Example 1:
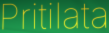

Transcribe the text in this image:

Pritilata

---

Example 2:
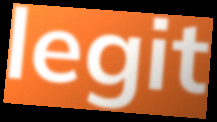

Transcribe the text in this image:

legit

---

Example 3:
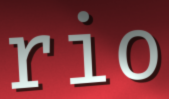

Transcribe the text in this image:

rio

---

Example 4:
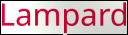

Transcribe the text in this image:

Lampard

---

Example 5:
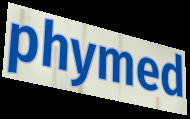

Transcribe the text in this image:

phymed